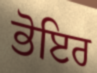
ਭੋਇਰ